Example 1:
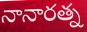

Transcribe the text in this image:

నానారత్న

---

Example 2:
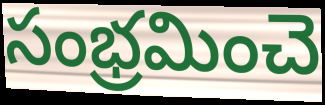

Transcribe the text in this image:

సంభ్రమించె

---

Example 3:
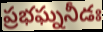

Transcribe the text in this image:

ప్రభఘ్ననీడః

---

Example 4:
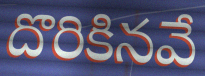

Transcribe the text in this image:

దొరికినవే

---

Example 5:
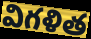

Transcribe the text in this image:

విగళిత